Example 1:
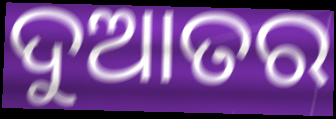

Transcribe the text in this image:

ଦୁଆତର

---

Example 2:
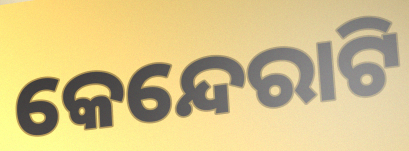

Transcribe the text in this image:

କେନ୍ଦେରାଟି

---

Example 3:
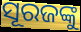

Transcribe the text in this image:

ସୂରଜଙ୍କୁ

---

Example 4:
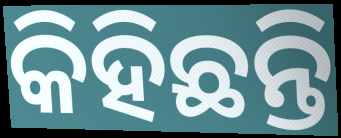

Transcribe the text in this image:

କିହିଛନ୍ତି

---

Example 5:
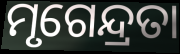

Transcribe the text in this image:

ମୃଗେନ୍ଦ୍ରତା